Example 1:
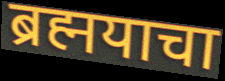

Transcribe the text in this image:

ब्रह्मयाचा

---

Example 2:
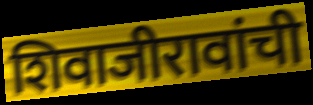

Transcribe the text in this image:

शिवाजीरावांची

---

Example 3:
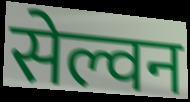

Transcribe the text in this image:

सेल्वन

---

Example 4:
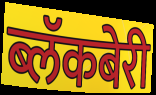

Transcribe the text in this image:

ब्लॅकबेरी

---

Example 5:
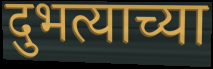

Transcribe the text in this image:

दुभत्याच्या